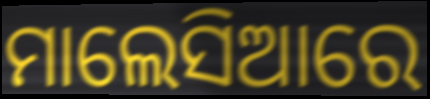
ମାଲେସିଆରେ